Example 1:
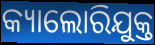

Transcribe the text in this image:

କ୍ୟାଲୋରିଯୁକ୍ତ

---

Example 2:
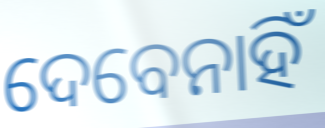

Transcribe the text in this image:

ଦେବେନାହିଁ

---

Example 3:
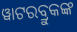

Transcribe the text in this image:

ୱାଟରବ୍ରୁକଙ୍କ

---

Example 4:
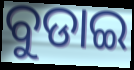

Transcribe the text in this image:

ବୁଡାଇ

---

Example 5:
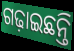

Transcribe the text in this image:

ଗଢ଼ାଇଛନ୍ତି